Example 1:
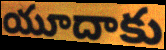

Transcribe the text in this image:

యూదాకు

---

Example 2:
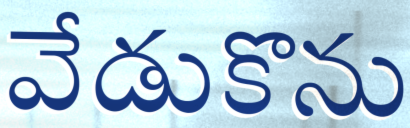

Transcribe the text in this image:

వేడుకొను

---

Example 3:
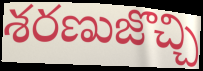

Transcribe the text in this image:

శరణుజొచ్చి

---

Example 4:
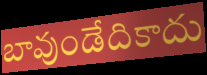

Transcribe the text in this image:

బావుండేదికాదు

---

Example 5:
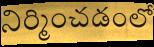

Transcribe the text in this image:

నిర్మించడంలో